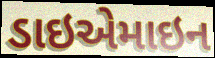
ડાઇએમાઇન